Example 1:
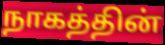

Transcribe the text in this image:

நாகத்தின்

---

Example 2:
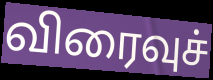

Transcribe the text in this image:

விரைவுச்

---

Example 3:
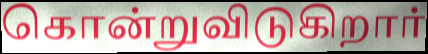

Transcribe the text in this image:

கொன்றுவிடுகிறார்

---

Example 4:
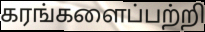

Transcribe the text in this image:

கரங்களைப்பற்றி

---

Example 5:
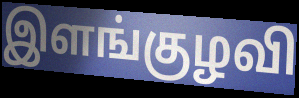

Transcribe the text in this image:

இளங்குழவி